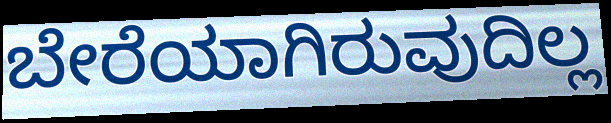
ಬೇರೆಯಾಗಿರುವುದಿಲ್ಲ